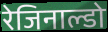
रेजिनाल्डो